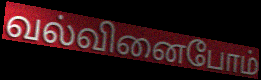
வல்வினைபோம்